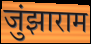
जुंझाराम